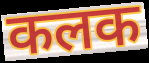
कलक